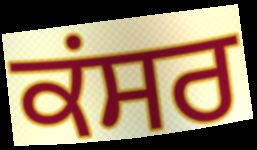
ਕਂਸਰ